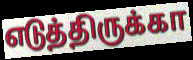
எடுத்திருக்கா